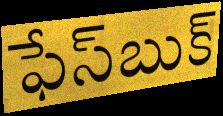
ఫేస్‌బుక్